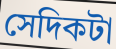
সেদিকটা